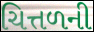
ચિત્તળની